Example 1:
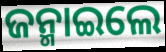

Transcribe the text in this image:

ଜନ୍ମାଇଲେ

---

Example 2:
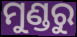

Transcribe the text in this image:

ମୁଣ୍ଡରୁ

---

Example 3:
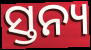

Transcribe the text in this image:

ସ୍ତନ୍ୟ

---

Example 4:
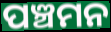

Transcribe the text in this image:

ପଞ୍ଚମନ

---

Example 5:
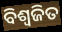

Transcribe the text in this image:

ବିଶ୍ଵଜିତ